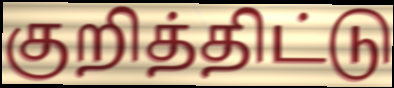
குறித்திட்டு